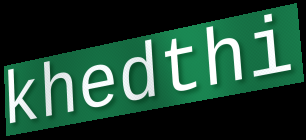
khedthi